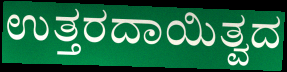
ಉತ್ತರದಾಯಿತ್ವದ